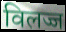
विलज्ज